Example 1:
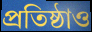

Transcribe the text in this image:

প্রতিষ্ঠাও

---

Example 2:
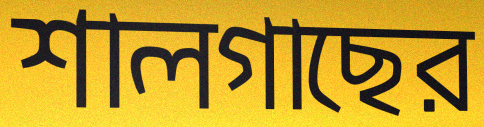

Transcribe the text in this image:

শালগাছের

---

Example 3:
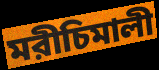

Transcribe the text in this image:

মরীচিমালী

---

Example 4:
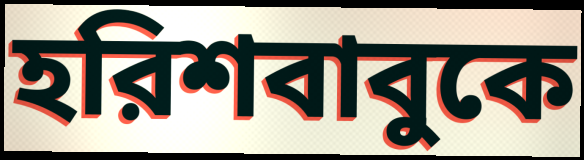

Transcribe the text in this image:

হরিশবাবুকে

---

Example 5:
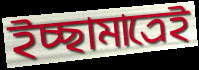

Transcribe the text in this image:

ইচ্ছামাত্রেই